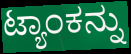
ಟ್ಯಾಂಕನ್ನು